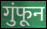
गुंफून